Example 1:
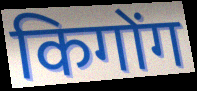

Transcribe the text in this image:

किगोंग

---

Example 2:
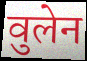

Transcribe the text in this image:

वुलेन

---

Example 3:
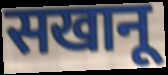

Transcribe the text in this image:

सखानू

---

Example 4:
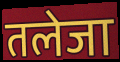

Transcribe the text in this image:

तलेजा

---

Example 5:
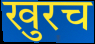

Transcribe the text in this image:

खुरच